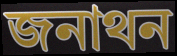
জনাথন